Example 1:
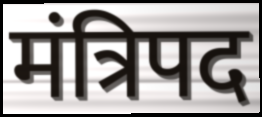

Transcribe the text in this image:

मंत्रिपद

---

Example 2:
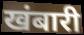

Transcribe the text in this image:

खंबारी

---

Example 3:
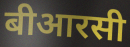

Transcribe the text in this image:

बीआरसी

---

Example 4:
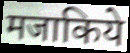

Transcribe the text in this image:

मजाकिये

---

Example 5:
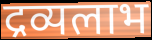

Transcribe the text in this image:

द्रव्यलाभ